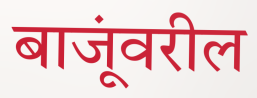
बाजूंवरील